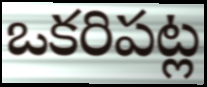
ఒకరిపట్ల